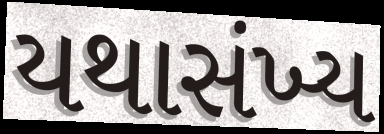
યથાસંખ્ય